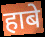
हाबे